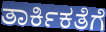
ತಾರ್ಕಿಕತೆಗೆ